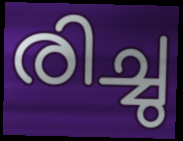
രിച്ചു